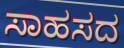
ಸಾಹಸದ